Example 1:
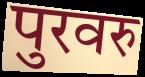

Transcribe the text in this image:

पुरवरु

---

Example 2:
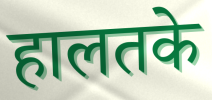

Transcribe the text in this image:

हालतके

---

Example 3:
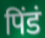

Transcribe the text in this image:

पिंडं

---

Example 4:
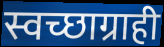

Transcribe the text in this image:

स्वच्छाग्राही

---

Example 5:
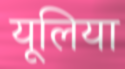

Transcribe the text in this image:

यूलिया